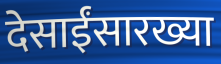
देसाईंसारख्या